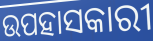
ଉପହାସକାରୀ